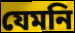
যেমনি